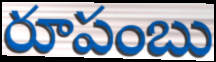
రూపంబు